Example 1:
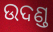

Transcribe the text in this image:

ଉଦଣ୍ଡ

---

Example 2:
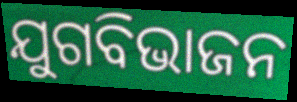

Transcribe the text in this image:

ଯୁଗବିଭାଜନ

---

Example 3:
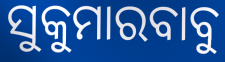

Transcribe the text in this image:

ସୁକୁମାରବାବୁ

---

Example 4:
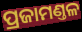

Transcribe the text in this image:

ପ୍ରଜାମଣ୍ତଳ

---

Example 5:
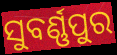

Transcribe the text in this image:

ସୁବର୍ଣ୍ଣପୁର